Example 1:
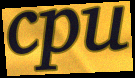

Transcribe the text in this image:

cpu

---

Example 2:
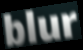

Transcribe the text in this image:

blur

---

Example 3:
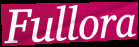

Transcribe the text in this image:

Fullora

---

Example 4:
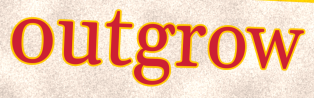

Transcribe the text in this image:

outgrow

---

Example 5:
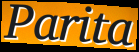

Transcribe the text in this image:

Parita